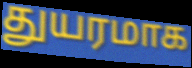
துயரமாக